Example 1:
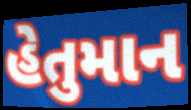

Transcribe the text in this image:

હેતુમાન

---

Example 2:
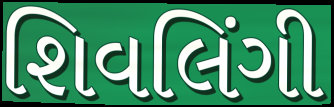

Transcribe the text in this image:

શિવલિંગી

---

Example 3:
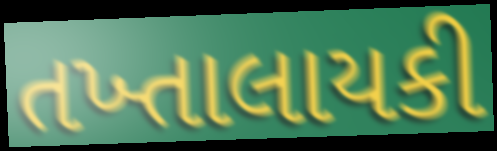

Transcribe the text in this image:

તખ્તાલાયકી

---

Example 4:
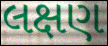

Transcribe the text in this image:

લક્ષણ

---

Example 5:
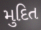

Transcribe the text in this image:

મુદિત